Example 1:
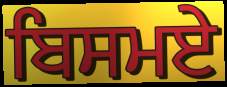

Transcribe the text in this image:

ਬਿਸਮਏ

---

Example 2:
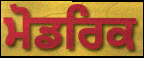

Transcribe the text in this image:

ਮੋਡਰਿਕ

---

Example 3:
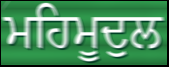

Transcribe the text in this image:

ਮਹਿਮੂਦੁਲ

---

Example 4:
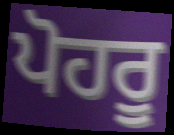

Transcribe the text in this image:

ਪੋਹਰੂ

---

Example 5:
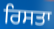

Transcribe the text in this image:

ਰਿਸਤਾ